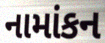
નામાંકન